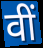
वीं